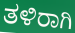
ತಳಿರಾಗಿ